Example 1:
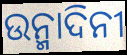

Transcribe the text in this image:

ଉନ୍ମାଦିନୀ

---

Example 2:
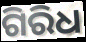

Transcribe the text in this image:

ଗିରିଧ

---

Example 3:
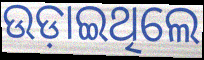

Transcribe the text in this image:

ଉଡ଼ାଇଥିଲେ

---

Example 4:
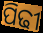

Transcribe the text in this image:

ପିଢୀ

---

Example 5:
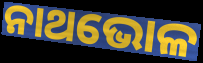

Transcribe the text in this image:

ନାଥଭୋଳ